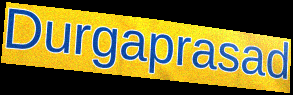
Durgaprasad